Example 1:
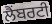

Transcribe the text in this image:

ਲੈਂਬਰਟੀ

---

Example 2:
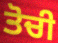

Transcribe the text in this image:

ਤੋਚੀ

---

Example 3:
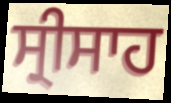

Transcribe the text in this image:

ਸ੍ਰੀਸਾਹ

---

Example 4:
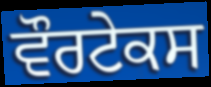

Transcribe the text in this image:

ਵੌਰਟੇਕਸ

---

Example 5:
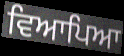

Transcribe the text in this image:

ਵਿਆਪਿਆ